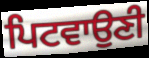
ਪਿਟਵਾਉਣੀ